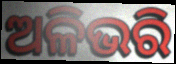
ଅଳିଭରି